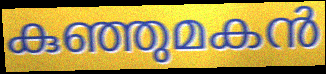
കുഞ്ഞുമകൻ